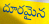
దూరమైన